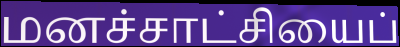
மனச்சாட்சியைப்